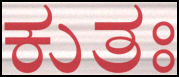
ಕುತಃ